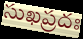
సుఖప్రదః